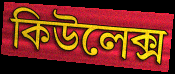
কিউলেক্স